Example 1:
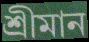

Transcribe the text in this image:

শ্রীমান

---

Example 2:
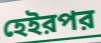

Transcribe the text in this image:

হেইরপর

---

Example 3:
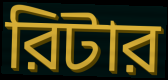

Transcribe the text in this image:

রিটার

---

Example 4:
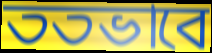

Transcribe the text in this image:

ততভাবে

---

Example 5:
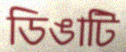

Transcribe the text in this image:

ডিঙাটি